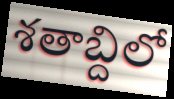
శతాబ్దిలో